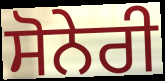
ਸੋਨੇਰੀ